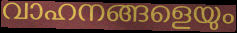
വാഹനങ്ങളെയും